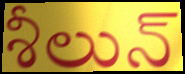
శీలున్